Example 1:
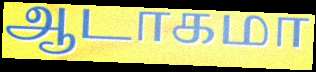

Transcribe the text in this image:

ஆடாகமா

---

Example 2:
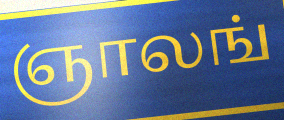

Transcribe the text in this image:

ஞாலங்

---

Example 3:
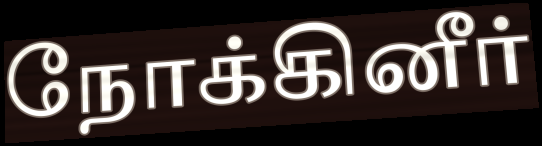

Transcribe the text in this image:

நோக்கினீர்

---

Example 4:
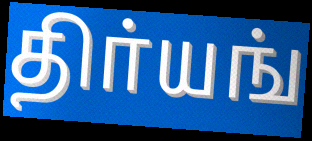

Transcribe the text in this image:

திர்யங்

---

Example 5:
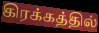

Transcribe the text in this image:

கிரக்கத்தில்